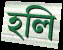
হলি